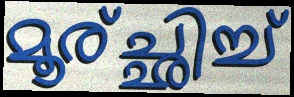
മൂര്ച്ഛിച്ച്